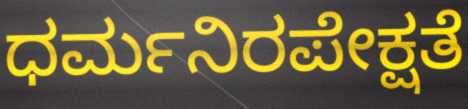
ಧರ್ಮನಿರಪೇಕ್ಷತೆ